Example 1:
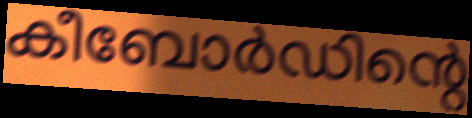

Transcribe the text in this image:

കീബോർഡിന്റെ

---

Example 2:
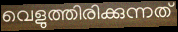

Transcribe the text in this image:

വെളുത്തിരിക്കുന്നത്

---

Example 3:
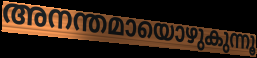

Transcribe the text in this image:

അനന്തമായൊഴുകുന്നൂ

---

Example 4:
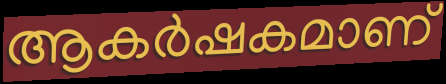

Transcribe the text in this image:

ആകർഷകമാണ്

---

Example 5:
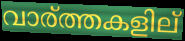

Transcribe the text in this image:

വാര്ത്തകളില്